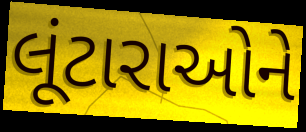
લૂંટારાઓને